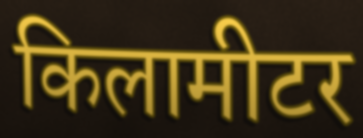
किलामीटर